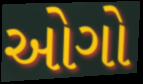
ઓગો